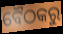
ବୈଠକରୁ